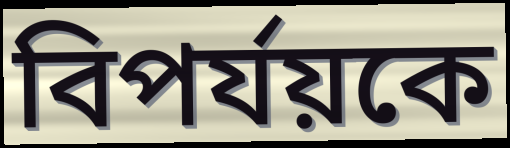
বিপর্যয়কে